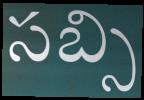
సబ్సి